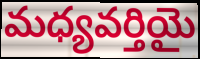
మధ్యవర్తియై